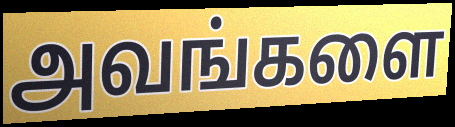
அவங்களை